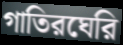
গাতিরঘেরি